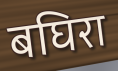
बघिरा